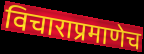
विचाराप्रमाणेच